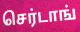
செர்டாங்